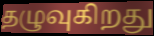
தழுவுகிறது